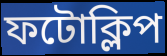
ফটোক্লিপ